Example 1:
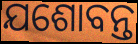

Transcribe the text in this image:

ଯଶୋବନ୍ତ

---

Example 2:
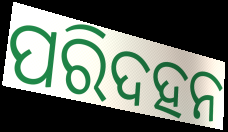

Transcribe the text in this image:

ପରିଦହନ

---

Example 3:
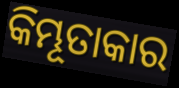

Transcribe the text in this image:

କିମ୍ଭୂତାକାର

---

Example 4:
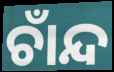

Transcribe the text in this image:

ଚାଁନ୍ଦ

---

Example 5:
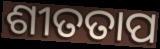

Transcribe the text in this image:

ଶୀତତାପ